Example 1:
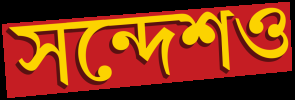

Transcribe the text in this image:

সন্দেশও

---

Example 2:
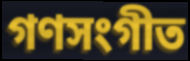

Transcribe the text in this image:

গণসংগীত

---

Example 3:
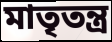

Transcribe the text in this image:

মাতৃতন্ত্র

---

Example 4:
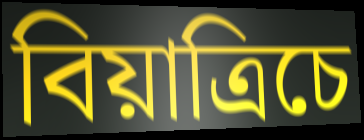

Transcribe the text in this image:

বিয়াত্রিচে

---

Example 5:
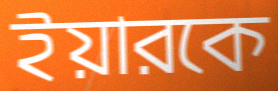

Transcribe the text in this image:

ইয়ারকে